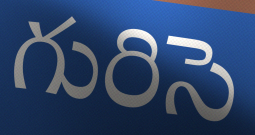
గురిసె